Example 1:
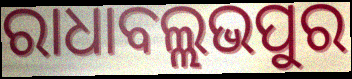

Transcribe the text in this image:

ରାଧାବଲ୍ଲଭପୁର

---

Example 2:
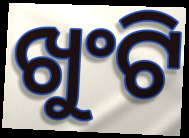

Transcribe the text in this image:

ଖୁଂଟି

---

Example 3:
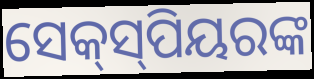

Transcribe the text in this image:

ସେକ୍‌ସ୍‌ପିୟରଙ୍କ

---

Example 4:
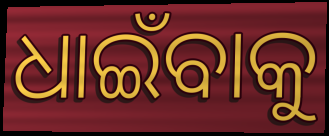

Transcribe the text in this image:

ଧାଇଁବାକୁ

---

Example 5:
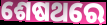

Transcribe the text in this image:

ଶେଷଥରେ